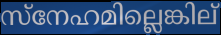
സ്നേഹമില്ലെങ്കില്